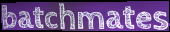
batchmates